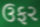
ઉફર